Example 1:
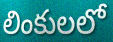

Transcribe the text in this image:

లింకులలో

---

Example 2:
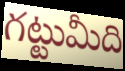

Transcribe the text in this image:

గట్టుమీది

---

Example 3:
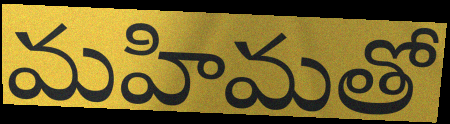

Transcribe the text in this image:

మహిమతో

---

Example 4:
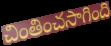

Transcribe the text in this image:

చింతించసాగింది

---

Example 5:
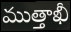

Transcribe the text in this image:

ముత్తాఖీ